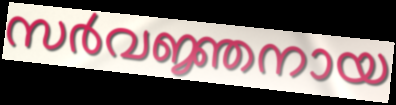
സർവജ്ഞനായ